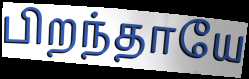
பிறந்தாயே